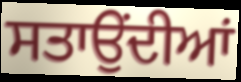
ਸਤਾਉਂਦੀਆਂ